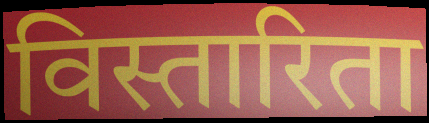
विस्तारिता